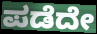
ಪಡೆದೇ